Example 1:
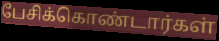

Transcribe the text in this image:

பேசிக்கொண்டார்கள்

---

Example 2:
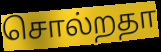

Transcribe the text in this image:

சொல்றதா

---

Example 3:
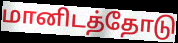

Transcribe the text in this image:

மானிடத்தோடு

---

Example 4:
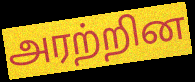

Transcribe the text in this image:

அரற்றின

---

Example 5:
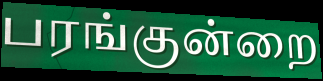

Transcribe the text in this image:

பரங்குன்றை